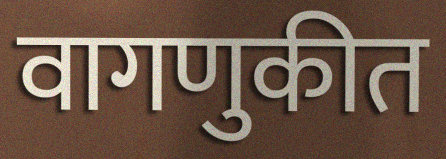
वागणुकीत